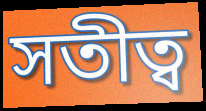
সতীত্ব